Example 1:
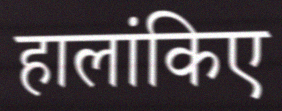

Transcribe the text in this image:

हालांकिए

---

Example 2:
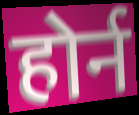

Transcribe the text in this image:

होर्न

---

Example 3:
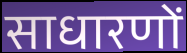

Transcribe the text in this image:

साधारणों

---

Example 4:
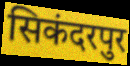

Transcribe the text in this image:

सिकंदरपुर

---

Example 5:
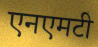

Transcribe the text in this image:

एनएमटी